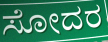
ಸೋದರ